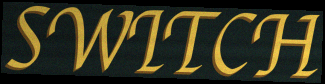
SWITCH